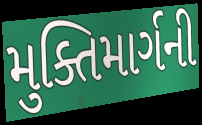
મુક્તિમાર્ગની